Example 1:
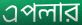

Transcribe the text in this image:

এপলার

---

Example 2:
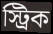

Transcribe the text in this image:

স্ট্রিক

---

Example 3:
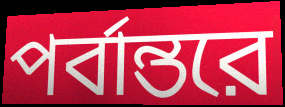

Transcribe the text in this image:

পর্বান্তরে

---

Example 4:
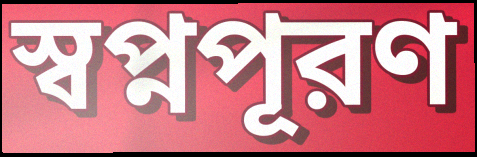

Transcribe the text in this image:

স্বপ্নপূরণ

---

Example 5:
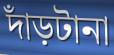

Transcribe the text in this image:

দাঁড়টানা